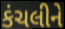
કંચલીને